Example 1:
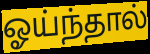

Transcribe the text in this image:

ஓய்ந்தால்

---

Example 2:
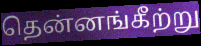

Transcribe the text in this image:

தென்னங்கீற்று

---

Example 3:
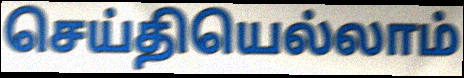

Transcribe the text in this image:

செய்தியெல்லாம்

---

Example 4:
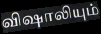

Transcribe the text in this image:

விஷாலியும்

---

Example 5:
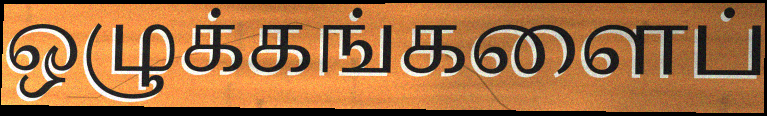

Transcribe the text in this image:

ஒழுக்கங்களைப்